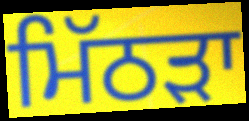
ਮਿੱਠੜਾ